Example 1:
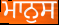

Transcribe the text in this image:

ਮਾਨੁਸ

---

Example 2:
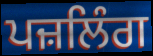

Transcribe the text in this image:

ਪਜ਼ਲਿੰਗ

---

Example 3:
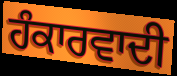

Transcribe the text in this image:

ਹੰਕਾਰਵਾਦੀ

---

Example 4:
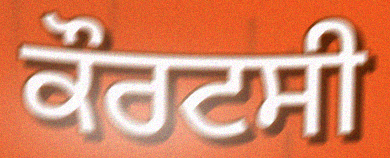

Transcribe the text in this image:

ਕੌਰਟਸੀ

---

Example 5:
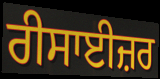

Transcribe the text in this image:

ਰੀਸਾਈਜ਼ਰ